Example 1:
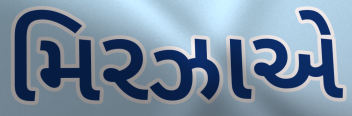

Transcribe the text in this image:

મિરઝાએ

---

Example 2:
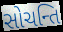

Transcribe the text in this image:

સોચન્તિ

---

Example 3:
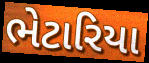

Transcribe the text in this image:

ભેટારિયા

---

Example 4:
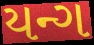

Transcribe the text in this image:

યન્ગ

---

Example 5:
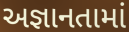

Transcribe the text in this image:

અજ્ઞાનતામાં